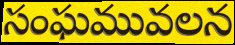
సంఘమువలన